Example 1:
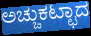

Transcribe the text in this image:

ಅಚ್ಚುಕಟ್ಟಾದ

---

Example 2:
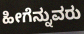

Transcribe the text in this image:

ಹೀಗೆನ್ನುವರು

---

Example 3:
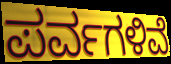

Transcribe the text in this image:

ಪರ್ವಗಳಿವೆ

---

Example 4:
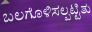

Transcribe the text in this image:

ಬಲಗೊಳಿಸಲ್ಪಟ್ಟಿತು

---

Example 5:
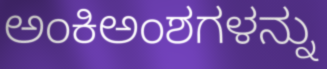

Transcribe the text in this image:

ಅಂಕಿಅಂಶಗಳನ್ನು